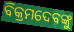
ବିକ୍ରମଦେବଙ୍କୁ